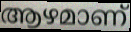
ആഴമാണ്